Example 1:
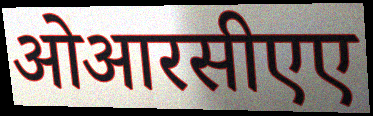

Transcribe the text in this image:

ओआरसीएए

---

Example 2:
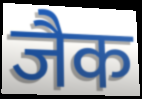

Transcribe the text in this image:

जैक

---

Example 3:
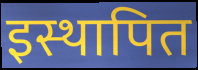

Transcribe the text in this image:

इस्थापित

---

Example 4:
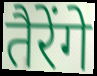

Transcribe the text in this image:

तैरेंगे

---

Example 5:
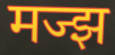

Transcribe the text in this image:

मज्झ